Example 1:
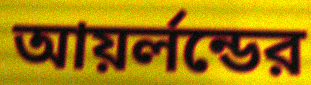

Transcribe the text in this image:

আয়র্লন্ডের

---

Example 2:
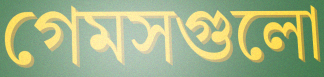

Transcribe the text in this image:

গেমসগুলো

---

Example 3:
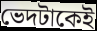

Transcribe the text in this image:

ভেদটাকেই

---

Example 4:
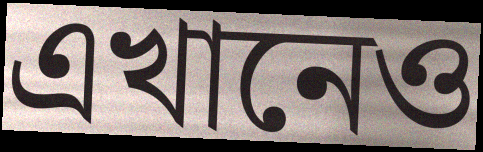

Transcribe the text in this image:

এখানেও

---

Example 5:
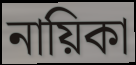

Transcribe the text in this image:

নায়িকা